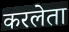
करलेता